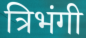
त्रिभंगी